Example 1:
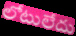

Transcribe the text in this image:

లోటులేదు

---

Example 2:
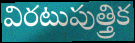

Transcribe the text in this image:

విరటుపుత్త్రిక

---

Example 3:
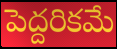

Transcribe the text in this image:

పెద్దరికమే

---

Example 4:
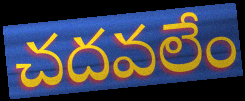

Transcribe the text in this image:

చదవలేం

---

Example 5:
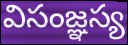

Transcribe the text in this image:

విసంజ్ఞస్య